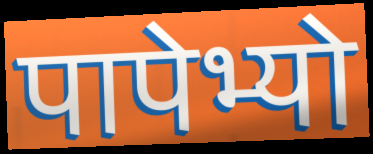
पापेभ्यो